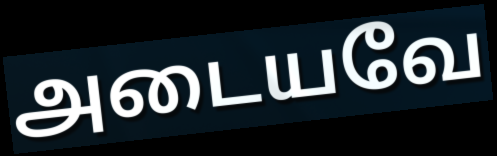
அடையவே